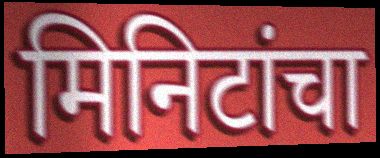
मिनिटांचा